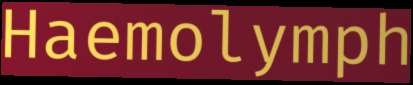
Haemolymph